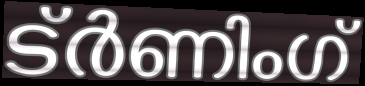
ട്ർണിംഗ്